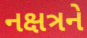
નક્ષત્રને